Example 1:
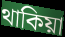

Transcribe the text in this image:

থাকিয়া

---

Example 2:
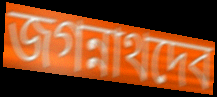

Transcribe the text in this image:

জগন্নাথদেব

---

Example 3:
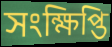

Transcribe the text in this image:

সংক্ষিপ্তি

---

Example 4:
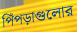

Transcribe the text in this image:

পিঁপড়াগুলোর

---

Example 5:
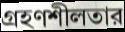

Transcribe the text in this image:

গ্রহণশীলতার